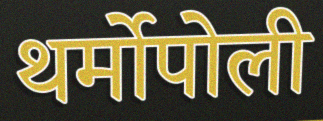
थर्मोपोली